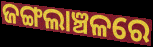
ଜଙ୍ଗଲାଞ୍ଚଳରେ